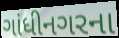
ગાંધીનગરના